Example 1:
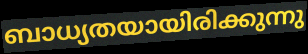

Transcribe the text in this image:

ബാധ്യതയായിരിക്കുന്നു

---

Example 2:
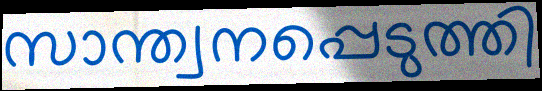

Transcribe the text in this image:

സാന്ത്വനപ്പെടുത്തി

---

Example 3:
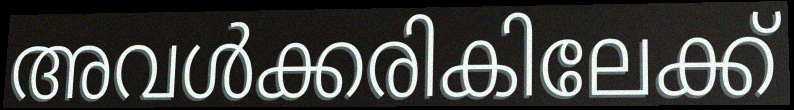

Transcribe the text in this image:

അവൾക്കരികിലേക്ക്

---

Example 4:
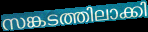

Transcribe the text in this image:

സങ്കടത്തിലാക്കി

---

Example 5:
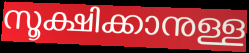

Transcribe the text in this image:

സൂക്ഷിക്കാനുള്ള